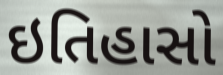
ઇતિહાસો